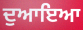
ਦੁਆਇਆ